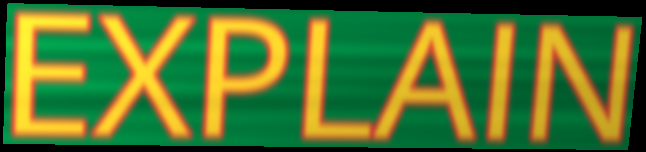
EXPLAIN